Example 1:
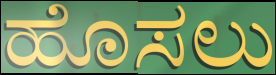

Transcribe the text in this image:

ಹೊಸಲು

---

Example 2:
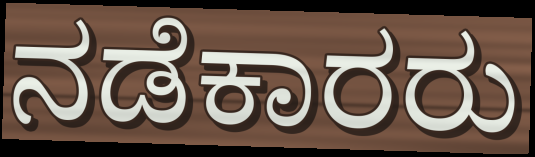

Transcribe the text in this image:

ನಡೆಕಾರರು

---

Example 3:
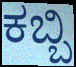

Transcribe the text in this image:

ಕಬ್ಬಿ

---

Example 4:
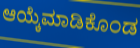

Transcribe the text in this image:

ಆಯ್ಕೆಮಾಡಿಕೊಂಡ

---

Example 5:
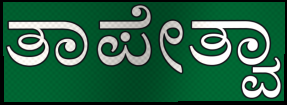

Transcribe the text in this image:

ತಾಪೇತ್ವಾ